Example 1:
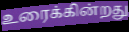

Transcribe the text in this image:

உரைக்கின்றது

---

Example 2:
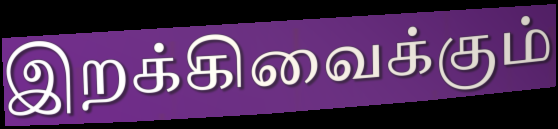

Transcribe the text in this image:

இறக்கிவைக்கும்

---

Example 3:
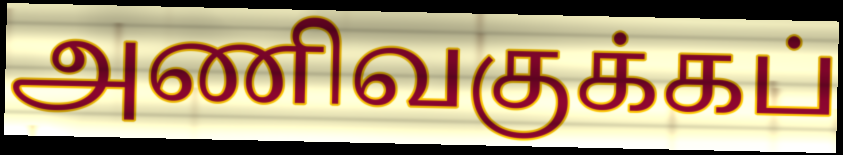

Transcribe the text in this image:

அணிவகுக்கப்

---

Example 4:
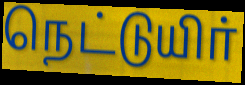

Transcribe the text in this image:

நெட்டுயிர்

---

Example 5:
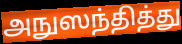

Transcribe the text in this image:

அநுஸந்தித்து